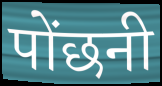
पोंछनी